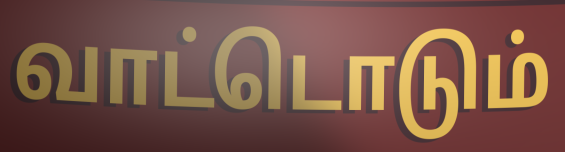
வாட்டொடும்